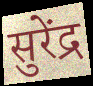
सुरेंद्र